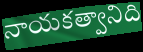
నాయకత్వానిది